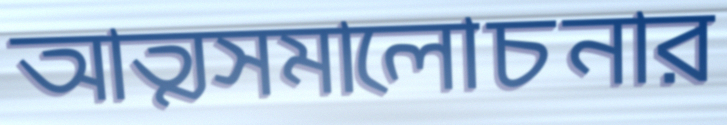
আত্মসমালোচনার